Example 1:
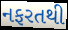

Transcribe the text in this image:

નફરતથી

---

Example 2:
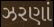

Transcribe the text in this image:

ઝરણાં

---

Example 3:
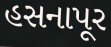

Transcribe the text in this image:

હસનાપૂર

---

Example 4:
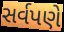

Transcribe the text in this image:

સર્વપણે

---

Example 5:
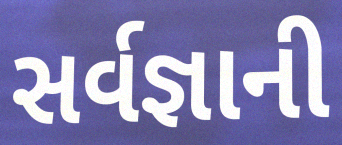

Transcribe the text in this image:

સર્વજ્ઞાની